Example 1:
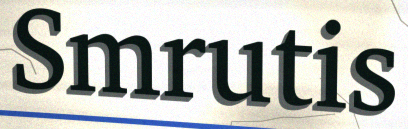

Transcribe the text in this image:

Smrutis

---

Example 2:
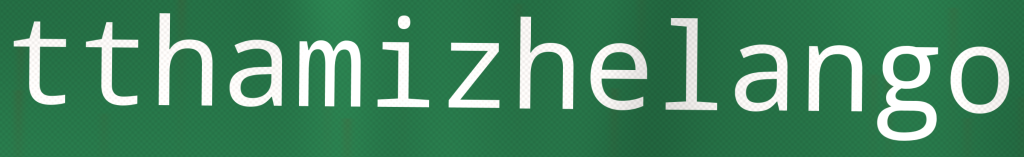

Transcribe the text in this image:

tthamizhelango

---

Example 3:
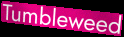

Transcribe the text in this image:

Tumbleweed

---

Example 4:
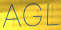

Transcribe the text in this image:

AGL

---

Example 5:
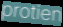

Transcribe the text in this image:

protien